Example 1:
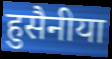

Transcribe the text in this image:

हुसैनीया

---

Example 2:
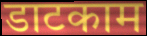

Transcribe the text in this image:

डाटकाम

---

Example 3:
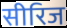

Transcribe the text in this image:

सीरिज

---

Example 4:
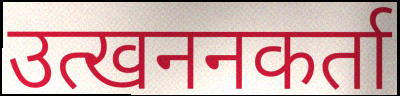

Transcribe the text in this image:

उत्खननकर्ता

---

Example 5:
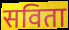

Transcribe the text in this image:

सविता